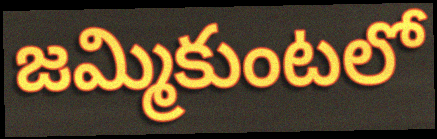
జమ్మికుంటలో